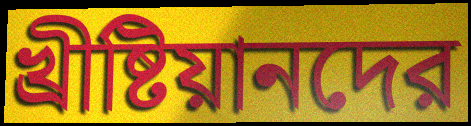
খ্রীষ্টিয়ানদের